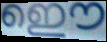
ഇൌ